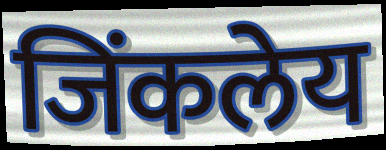
जिंकलेय